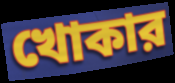
খোকার